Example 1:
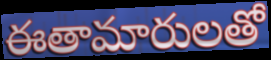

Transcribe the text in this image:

ఈతామారులతో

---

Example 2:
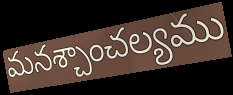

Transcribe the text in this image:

మనశ్చాంచల్యము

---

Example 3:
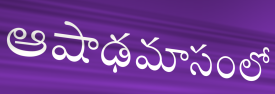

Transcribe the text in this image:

ఆషాఢమాసంలో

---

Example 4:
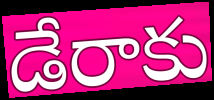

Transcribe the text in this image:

డేరాకు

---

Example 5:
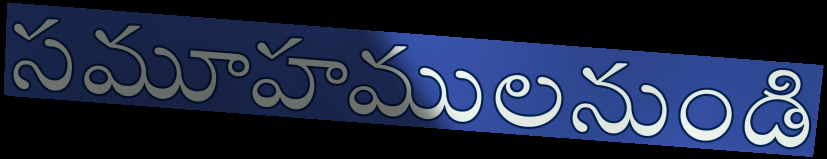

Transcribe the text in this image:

సమూహములనుండి